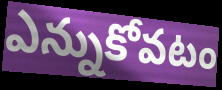
ఎన్నుకోవటం